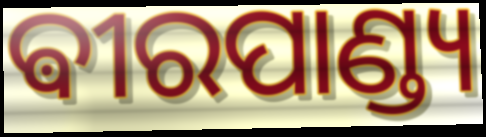
ଵୀରପାଣ୍ଡ୍ୟ